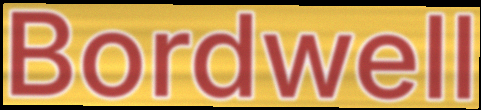
Bordwell